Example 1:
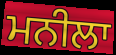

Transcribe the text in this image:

ਮਨੀਲਾ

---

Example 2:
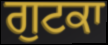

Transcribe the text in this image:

ਗੁਟਕਾ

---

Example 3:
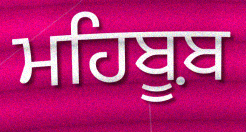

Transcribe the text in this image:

ਮਹਿਬ਼ੂਬ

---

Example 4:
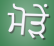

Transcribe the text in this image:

ਮੋੜੇਂ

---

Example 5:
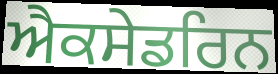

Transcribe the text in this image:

ਐਕਸੇਡਰਿਨ